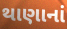
થાણાનાં